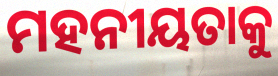
ମହନୀୟତାକୁ